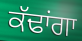
ਕੱਢਾਂਗਾ